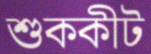
শুককীট